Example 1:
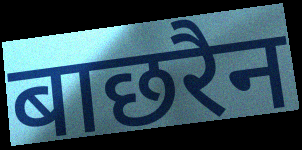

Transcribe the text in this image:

बाछरैन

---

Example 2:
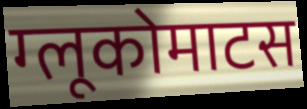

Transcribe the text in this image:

ग्लूकोमाटस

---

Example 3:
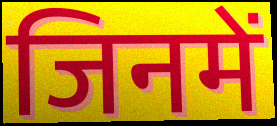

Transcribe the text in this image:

जिनमें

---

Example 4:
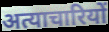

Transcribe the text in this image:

अत्याचारियों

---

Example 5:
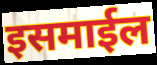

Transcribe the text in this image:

इसमाईल